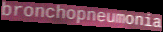
bronchopneumonia